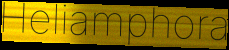
Heliamphora